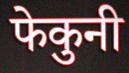
फेकुनी